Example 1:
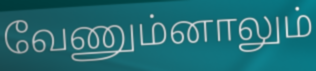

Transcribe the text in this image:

வேணும்னாலும்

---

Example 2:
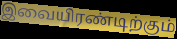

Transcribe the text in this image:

இவையிரண்டிற்கும்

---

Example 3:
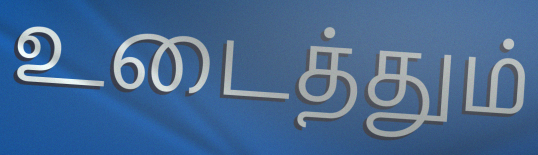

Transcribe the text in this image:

உடைத்தும்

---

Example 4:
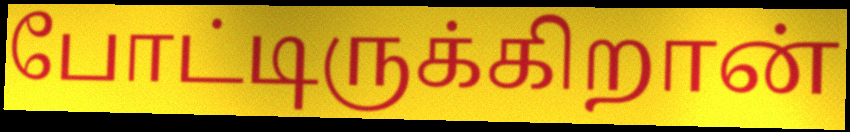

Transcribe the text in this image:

போட்டிருக்கிறான்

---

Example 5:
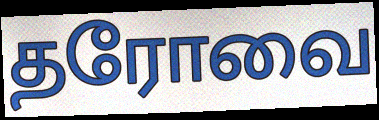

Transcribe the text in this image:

தரோவை